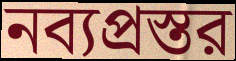
নব্যপ্রস্তর